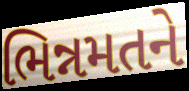
ભિન્નમતને